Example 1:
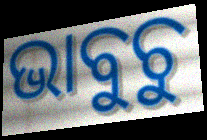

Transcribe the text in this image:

ଭାବୁଚୁ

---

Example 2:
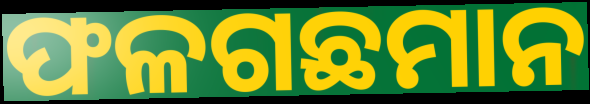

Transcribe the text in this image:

ଫଳଗଛମାନ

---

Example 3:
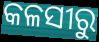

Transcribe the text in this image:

କଳସୀରୁ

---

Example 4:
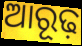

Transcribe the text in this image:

ଆରୂଢ଼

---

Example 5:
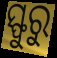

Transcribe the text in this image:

ସ୍ଫୁରୁ